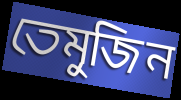
তেমুজিন